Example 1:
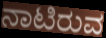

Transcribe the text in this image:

ನಾಟಿರುವ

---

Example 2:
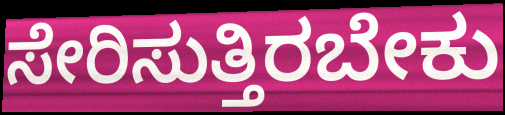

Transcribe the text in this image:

ಸೇರಿಸುತ್ತಿರಬೇಕು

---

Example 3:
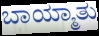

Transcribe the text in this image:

ಬಾಯ್ಮಾತು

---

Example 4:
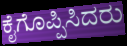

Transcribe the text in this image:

ಕೈಗೊಪ್ಪಿಸಿದರು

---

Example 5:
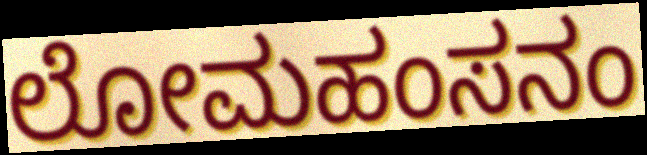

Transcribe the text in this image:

ಲೋಮಹಂಸನಂ